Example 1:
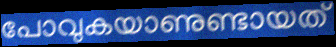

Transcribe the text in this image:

പോവുകയാണുണ്ടായത്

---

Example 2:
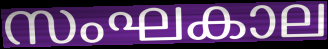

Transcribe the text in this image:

സംഘകാല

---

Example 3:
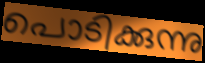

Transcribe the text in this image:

പൊടിക്കുന്നു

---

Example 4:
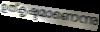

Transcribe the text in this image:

ഉത്കൃഷ്ടമാണെന്നു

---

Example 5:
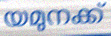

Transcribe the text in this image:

യമുനക്ക്